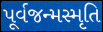
પૂર્વજન્મસ્મૃતિ